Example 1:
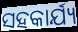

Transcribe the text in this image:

ସହକାର୍ଯ୍ୟ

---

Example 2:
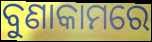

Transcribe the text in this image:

ବୁଣାକାମରେ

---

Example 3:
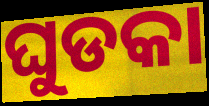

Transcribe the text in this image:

ଘୁଡକା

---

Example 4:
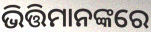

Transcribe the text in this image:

ଭିତ୍ତିମାନଙ୍କରେ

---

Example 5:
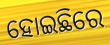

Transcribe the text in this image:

ହୋଇଛିରେ